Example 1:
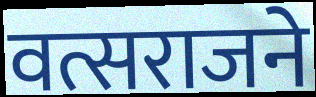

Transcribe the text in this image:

वत्सराजने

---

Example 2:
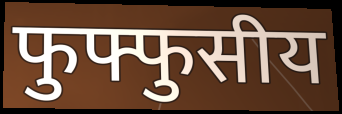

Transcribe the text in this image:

फुफ्फुसीय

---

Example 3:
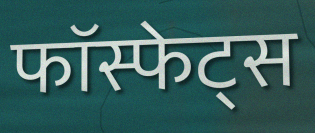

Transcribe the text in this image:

फॉस्फेट्स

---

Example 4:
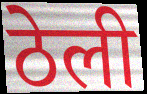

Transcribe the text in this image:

ठेली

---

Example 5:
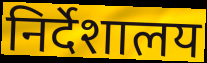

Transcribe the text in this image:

निर्देशालय